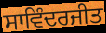
ਸਾਵਿੰਦਰਜੀਤ